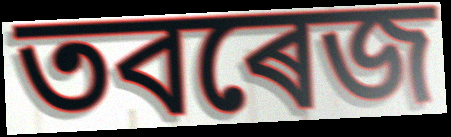
তবৰেজ